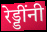
रेड्डींनी